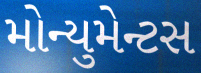
મોન્યુમેન્ટસ